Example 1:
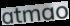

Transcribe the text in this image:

atmao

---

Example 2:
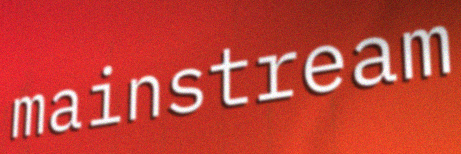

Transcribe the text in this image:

mainstream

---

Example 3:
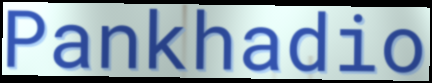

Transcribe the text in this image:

Pankhadio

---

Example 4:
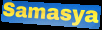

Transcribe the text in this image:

Samasya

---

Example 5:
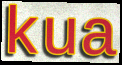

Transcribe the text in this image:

kua